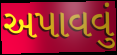
અપાવવું